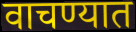
वाचण्यात